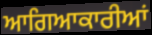
ਆਗਿਆਕਾਰੀਆਂ